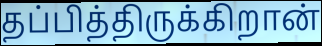
தப்பித்திருக்கிறான்